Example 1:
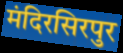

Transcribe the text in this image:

मंदिरसिरपुर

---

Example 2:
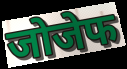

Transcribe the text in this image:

जोजेफ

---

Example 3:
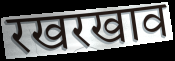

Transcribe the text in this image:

रखरखाव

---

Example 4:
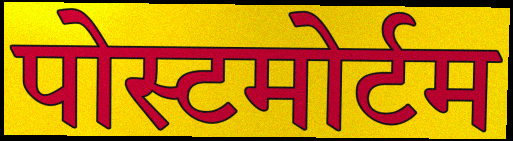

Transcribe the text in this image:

पोस्टमोर्टम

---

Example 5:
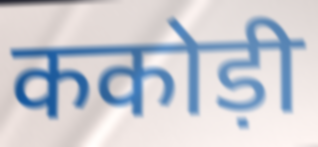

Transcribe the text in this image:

ककोड़ी